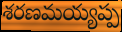
శరణమయ్యప్ప